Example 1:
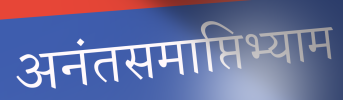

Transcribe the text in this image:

अनंतसमाप्तिभ्याम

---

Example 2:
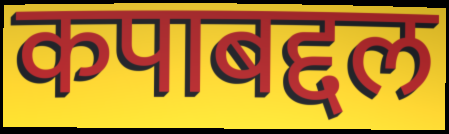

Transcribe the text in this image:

कपाबद्दल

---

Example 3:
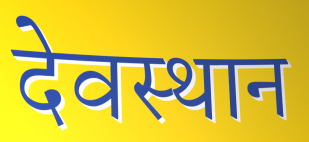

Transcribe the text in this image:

देवस्थान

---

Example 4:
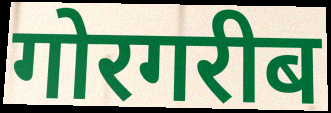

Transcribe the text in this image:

गोरगरीब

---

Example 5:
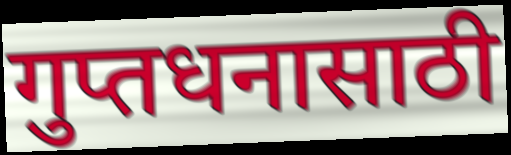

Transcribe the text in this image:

गुप्तधनासाठी